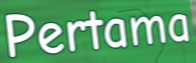
Pertama